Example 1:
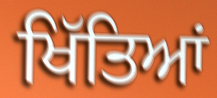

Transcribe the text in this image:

ਖਿੱਤਿਆਂ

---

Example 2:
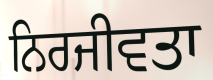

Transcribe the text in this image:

ਨਿਰਜੀਵਤਾ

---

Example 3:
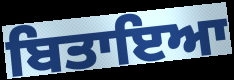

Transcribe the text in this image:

ਬਿਤਾਇਆ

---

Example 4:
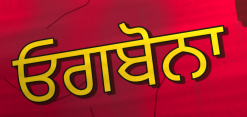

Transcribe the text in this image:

ਓਗਬੋਨਾ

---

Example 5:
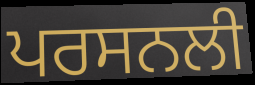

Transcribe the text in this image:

ਪਰਸਨਲੀ